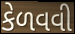
કેળવવી